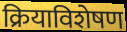
क्रियाविशेषण